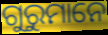
ଗୁରୁମାନେ